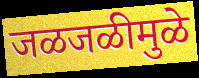
जळजळीमुळे